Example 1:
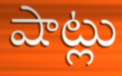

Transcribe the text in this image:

షాట్లు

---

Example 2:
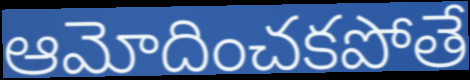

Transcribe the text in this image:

ఆమోదించకపోతే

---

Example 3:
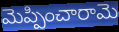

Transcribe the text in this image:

మెప్పించారామె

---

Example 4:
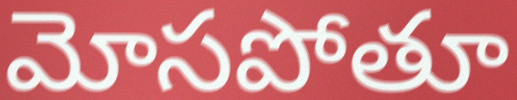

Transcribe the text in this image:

మోసపోతూ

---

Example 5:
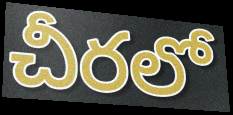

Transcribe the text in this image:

చీరలో